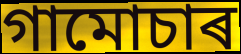
গামোচাৰ